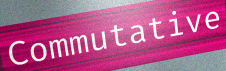
Commutative